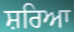
ਸ਼ਰਿਆ